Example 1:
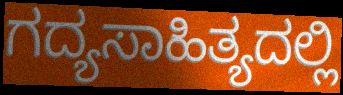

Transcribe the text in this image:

ಗದ್ಯಸಾಹಿತ್ಯದಲ್ಲಿ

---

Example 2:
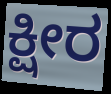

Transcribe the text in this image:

ಕ್ಷೀರ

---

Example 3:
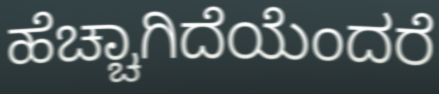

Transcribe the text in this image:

ಹೆಚ್ಚಾಗಿದೆಯೆಂದರೆ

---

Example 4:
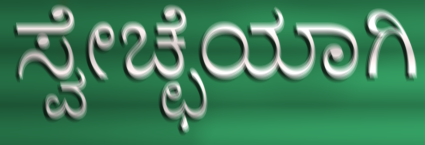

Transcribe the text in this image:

ಸ್ವೇಚ್ಛೆಯಾಗಿ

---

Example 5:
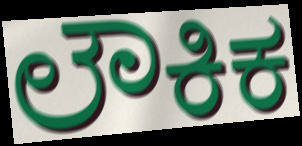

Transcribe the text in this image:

ಲೌಕಿಕ